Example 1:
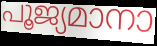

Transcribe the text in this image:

പൂജ്യമാനാ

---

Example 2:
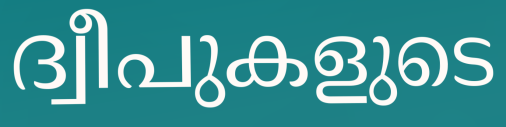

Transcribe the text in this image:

ദ്വീപുകളുടെ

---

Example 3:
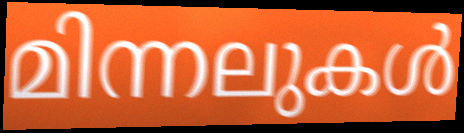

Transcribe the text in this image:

മിന്നലുകൾ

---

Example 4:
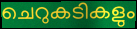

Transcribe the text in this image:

ചെറുകടികളും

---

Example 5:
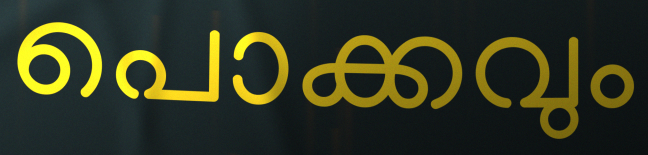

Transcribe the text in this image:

പൊക്കവും